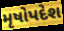
મૃષોપદેશ